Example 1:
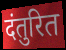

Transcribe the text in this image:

दंतुरित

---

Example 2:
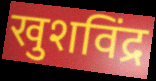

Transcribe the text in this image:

खुशविंद्र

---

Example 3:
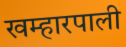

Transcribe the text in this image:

खम्हारपाली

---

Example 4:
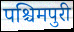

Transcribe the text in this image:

पश्चिमपुरी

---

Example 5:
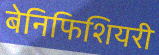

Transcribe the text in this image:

बेनिफिशियरी